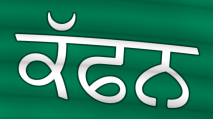
ਕੱਫਨ